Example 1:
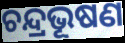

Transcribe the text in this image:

ଚନ୍ଦ୍ରଭୂଷଣ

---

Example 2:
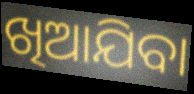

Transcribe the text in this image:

ଖିଆଯିବା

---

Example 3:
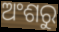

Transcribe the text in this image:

ଅଂଶରୁ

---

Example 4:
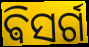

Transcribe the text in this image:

ଵିସର୍ଗ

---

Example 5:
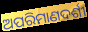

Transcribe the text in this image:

ଅପରିମାଣଦର୍ଶୀ